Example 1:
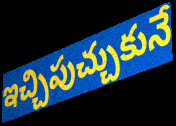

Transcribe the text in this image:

ఇచ్చిపుచ్చుకునే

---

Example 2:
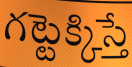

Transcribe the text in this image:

గట్టెక్కిస్తే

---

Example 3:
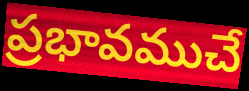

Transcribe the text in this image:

ప్రభావముచే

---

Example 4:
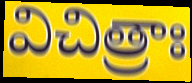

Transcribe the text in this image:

విచిత్రాః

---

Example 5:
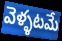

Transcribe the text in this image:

వెళ్ళటమే